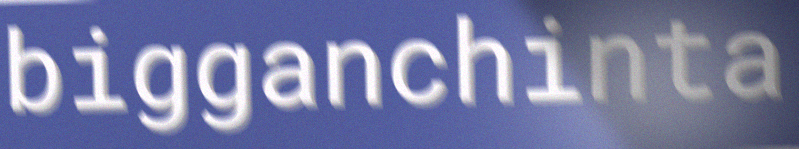
bigganchinta